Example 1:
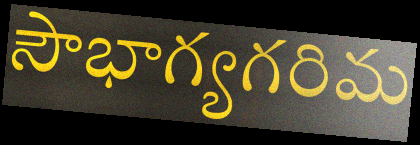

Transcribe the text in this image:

సౌభాగ్యగరిమ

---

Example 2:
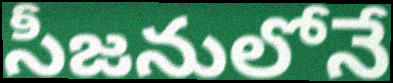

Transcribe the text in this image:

సీజనులోనే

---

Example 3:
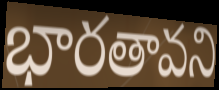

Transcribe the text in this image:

భారతావని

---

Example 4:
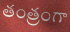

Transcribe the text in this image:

తంత్రంగా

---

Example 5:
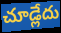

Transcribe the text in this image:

చూడ్లేదు